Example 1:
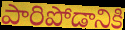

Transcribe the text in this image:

పారిపోడానికి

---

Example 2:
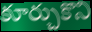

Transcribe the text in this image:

కూర్చుకొని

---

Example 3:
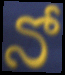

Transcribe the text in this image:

నో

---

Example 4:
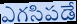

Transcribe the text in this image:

ఎగసిపడే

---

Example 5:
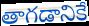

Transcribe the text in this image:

తాగడానికే